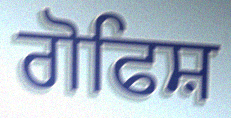
ਗੋਫਿਸ਼